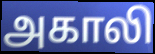
அகாலி